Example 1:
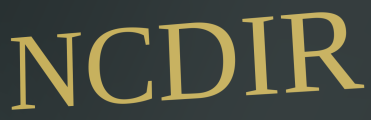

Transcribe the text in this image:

NCDIR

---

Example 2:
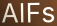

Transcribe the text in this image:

AIFs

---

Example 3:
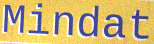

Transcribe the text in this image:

Mindat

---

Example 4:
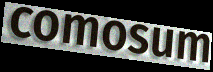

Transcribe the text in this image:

comosum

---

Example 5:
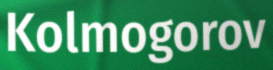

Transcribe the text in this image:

Kolmogorov